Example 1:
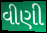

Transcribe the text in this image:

વીણી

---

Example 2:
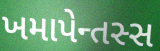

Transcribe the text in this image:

ખમાપેન્તસ્સ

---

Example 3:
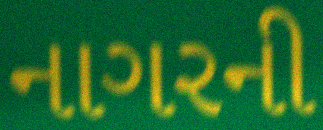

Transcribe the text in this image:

નાગરની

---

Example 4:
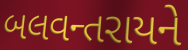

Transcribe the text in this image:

બલવન્તરાયને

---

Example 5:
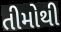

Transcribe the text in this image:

તીમોથી